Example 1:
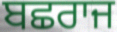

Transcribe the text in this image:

ਬਛਰਾਜ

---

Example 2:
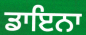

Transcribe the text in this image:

ਡਾਇਨਾ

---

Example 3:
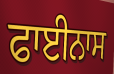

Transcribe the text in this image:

ਫਾਈਨਾਸ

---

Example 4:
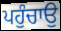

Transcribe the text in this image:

ਪਹੁੰਚਾਉ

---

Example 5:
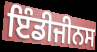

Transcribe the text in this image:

ਇੰਡੀਜੀਨਸ